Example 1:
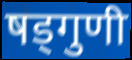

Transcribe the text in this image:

षड्गुणी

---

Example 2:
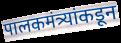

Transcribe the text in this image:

पालकमंत्र्यांकडून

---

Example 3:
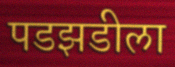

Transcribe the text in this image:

पडझडीला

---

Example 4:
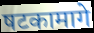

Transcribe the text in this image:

षटकामागे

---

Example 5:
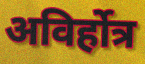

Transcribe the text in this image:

अविर्होत्र